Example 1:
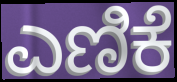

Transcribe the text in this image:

ಎಣಿಕೆ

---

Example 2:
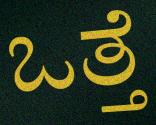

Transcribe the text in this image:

ಒತ್ತೆ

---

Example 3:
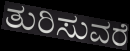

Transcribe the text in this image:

ತುರಿಸುವರೆ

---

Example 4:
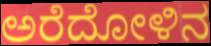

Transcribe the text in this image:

ಅರೆದೋಳಿನ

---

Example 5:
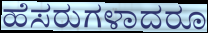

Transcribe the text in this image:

ಹೆಸರುಗಳಾದರೂ